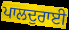
ਪਾਲਦੁਰਾਈ